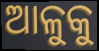
ଆଳୁକୁ